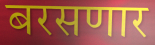
बरसणार